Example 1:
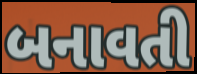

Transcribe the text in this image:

બનાવતી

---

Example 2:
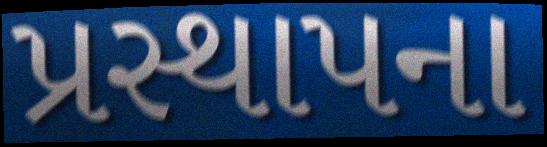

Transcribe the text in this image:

પ્રસ્થાપના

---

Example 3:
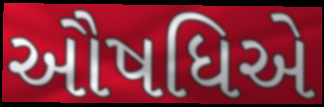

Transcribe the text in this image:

ઔષધિએ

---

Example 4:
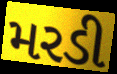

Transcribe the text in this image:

મરડી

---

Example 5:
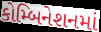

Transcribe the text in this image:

કોમ્બિનેશનમાં